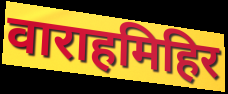
वाराहमिहिर